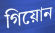
গিয়োন